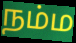
நம்ம